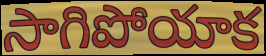
సాగిపోయాక